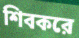
শিবকরে